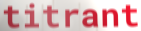
titrant